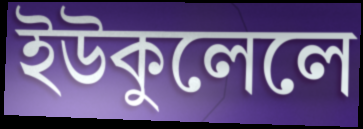
ইউকুলেলে